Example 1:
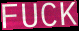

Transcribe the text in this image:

FUCK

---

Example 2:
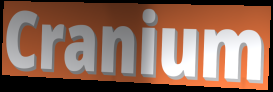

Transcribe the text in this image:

Cranium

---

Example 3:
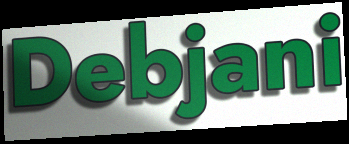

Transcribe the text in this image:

Debjani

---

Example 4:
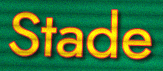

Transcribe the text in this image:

Stade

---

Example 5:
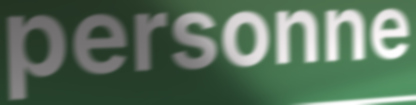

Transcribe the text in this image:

personne